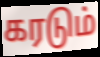
கரடும்